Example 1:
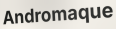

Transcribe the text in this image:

Andromaque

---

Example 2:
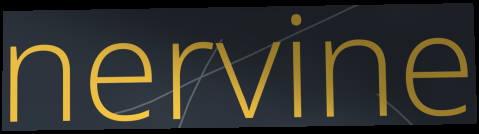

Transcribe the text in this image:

nervine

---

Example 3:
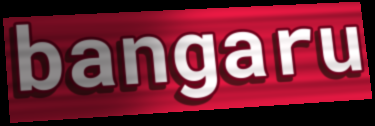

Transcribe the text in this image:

bangaru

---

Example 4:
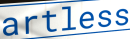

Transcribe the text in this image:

artless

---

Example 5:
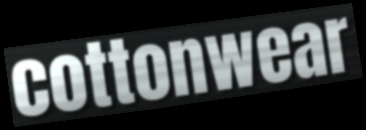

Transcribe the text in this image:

cottonwear